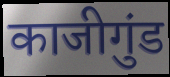
काजीगुंड